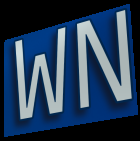
WN